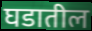
घडातील